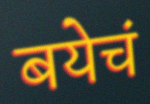
बयेचं